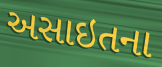
અસાઇતના